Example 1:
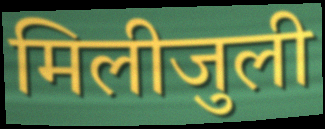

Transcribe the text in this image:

मिलीजुली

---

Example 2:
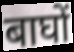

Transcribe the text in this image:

बाघों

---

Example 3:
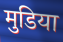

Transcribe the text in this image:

मुडिया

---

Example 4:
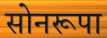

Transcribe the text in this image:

सोनरूपा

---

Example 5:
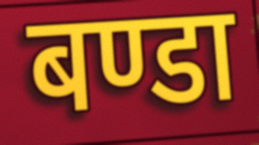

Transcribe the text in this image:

बण्डा